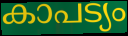
കാപട്യം